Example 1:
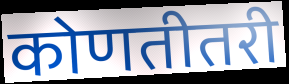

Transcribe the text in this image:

कोणतीतरी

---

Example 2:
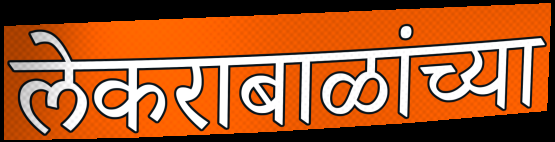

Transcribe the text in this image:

लेकराबाळांच्या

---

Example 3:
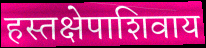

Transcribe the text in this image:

हस्तक्षेपाशिवाय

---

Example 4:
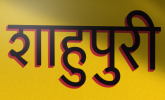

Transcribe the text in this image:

शाहुपुरी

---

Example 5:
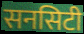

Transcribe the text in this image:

सनसिटी